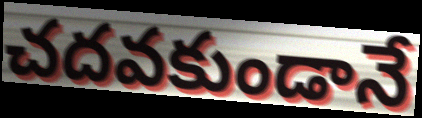
చదవకుండానే